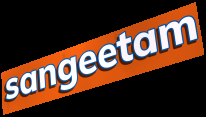
sangeetam